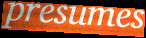
presumes